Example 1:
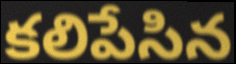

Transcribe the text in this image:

కలిపేసిన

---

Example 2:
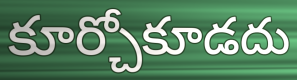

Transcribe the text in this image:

కూర్చోకూడదు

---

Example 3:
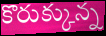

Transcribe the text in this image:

కొరుక్కున్న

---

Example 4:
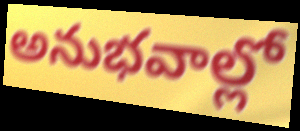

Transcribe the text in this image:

అనుభవాల్లో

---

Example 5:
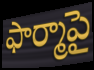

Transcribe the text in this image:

ఫార్మాపై